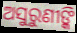
ଅସୁରୁଣୀଙ୍କି